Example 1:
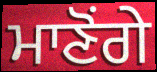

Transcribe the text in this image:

ਮਾਣੋਂਗੇ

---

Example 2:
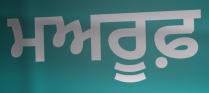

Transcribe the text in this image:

ਮਅਰੂਫ਼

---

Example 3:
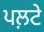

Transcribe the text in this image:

ਪਲ਼ਟੇ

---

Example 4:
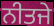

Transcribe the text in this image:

ਨੀਤਜੇ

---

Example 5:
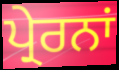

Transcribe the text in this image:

ਪ੍ਰੇਰਨਾਂ